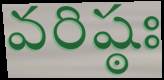
వరిష్ఠః